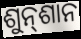
ଶୁନ୍‍ଶାନ